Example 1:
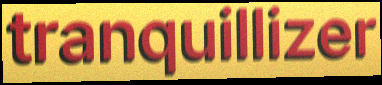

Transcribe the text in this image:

tranquillizer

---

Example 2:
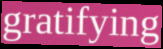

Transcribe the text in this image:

gratifying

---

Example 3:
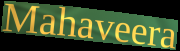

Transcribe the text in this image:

Mahaveera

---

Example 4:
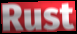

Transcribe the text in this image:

Rust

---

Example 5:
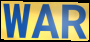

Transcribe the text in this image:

WAR